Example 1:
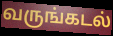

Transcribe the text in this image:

வருங்கடல்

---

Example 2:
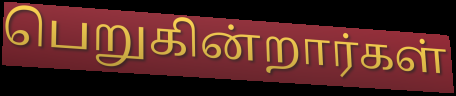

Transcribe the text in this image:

பெறுகின்றார்கள்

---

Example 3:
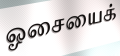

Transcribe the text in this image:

ஓசையைக்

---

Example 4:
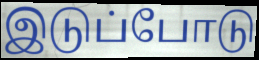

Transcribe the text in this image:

இடுப்போடு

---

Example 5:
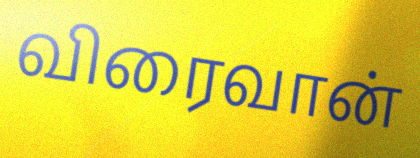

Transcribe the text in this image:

விரைவான்